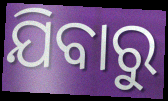
ଯିବାରୁ